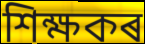
শিক্ষকৰ